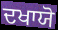
ਦਖਾਯੋ